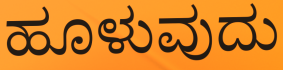
ಹೂಳುವುದು